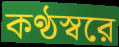
কণ্ঠস্বরে